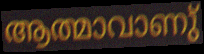
ആത്മാവാണു്